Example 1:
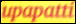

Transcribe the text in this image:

upapatti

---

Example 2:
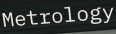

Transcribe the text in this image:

Metrology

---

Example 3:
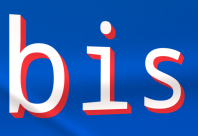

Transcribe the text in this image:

bis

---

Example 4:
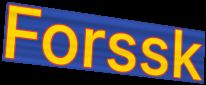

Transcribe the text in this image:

Forssk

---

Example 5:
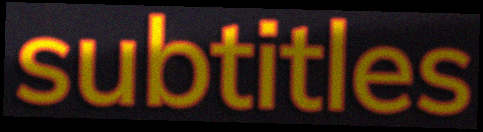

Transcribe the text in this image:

subtitles